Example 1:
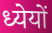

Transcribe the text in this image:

ध्येयों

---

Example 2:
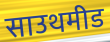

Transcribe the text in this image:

साउथमीड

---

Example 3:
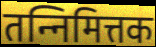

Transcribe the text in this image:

तन्निमित्तक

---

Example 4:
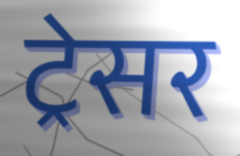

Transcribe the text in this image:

ट्रेसर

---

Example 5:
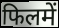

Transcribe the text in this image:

फिलमें